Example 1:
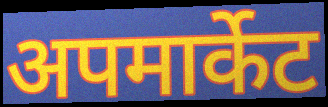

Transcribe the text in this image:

अपमार्केट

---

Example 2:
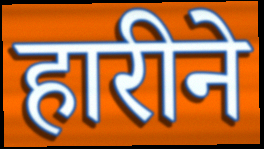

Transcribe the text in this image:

हारीने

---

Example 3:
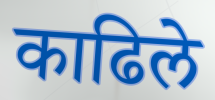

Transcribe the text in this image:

काढिले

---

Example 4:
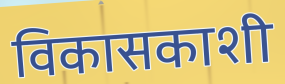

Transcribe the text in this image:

विकासकाशी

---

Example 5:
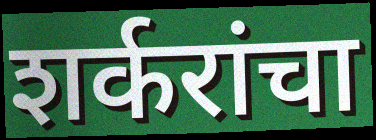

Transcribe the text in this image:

शर्करांचा